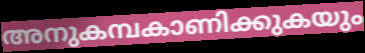
അനുകമ്പകാണിക്കുകയും